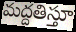
మద్దతిస్తూ